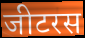
जीटरस